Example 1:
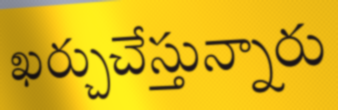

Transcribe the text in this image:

ఖర్చుచేస్తున్నారు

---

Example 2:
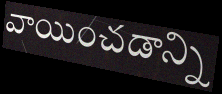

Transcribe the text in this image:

వాయించడాన్ని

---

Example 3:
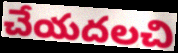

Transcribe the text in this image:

చేయదలచి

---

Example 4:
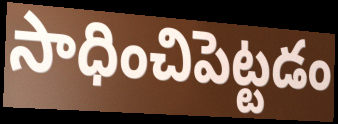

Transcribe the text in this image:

సాధించిపెట్టడం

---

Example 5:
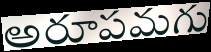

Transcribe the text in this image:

అరూపమగు